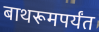
बाथरूमपर्यंत